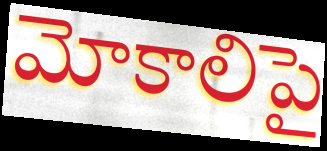
మోకాలిపై